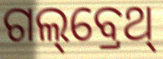
ଗଲ୍‌ବ୍ରେଥ୍